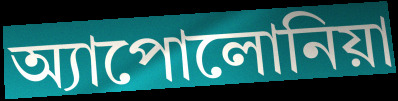
অ্যাপোলোনিয়া